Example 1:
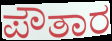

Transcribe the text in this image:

ಪೌತಾರ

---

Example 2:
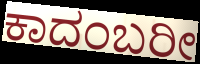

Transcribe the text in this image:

ಕಾದಂಬರೀ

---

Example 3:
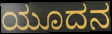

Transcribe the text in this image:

ಯೂದನ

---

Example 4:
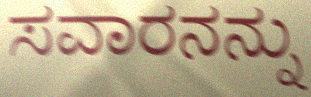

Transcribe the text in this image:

ಸವಾರನನ್ನು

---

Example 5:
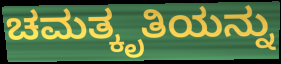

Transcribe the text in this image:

ಚಮತ್ಕೃತಿಯನ್ನು